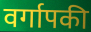
वर्गापकी